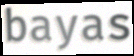
bayas